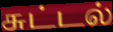
சுட்டல்